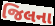
જિલના